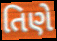
તિણે